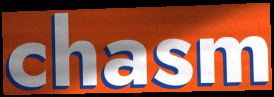
chasm